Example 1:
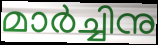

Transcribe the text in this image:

മാർച്ചിനു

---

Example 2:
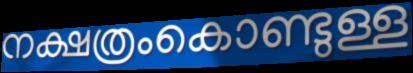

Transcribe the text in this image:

നക്ഷത്രംകൊണ്ടുള്ള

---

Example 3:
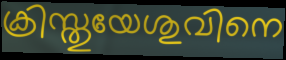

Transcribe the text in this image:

ക്രിസ്തുയേശുവിനെ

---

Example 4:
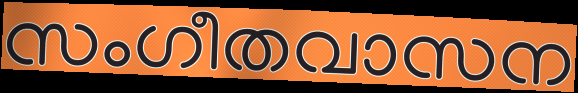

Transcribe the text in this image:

സംഗീതവാസന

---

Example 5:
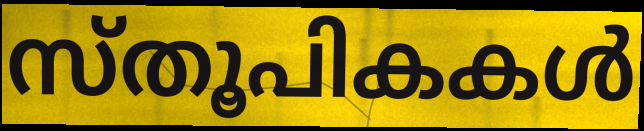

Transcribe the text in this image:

സ്തൂപികകൾ